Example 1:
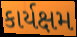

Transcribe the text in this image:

કાર્યક્ષમ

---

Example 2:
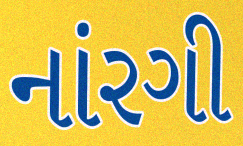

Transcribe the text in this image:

નાંરગી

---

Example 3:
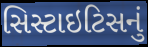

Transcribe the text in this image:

સિસ્ટાઇટિસનું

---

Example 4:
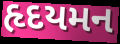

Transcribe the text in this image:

હૃદયમન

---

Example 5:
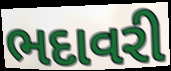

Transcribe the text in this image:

ભદાવરી